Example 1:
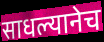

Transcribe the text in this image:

साधल्यानेच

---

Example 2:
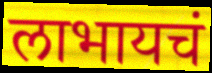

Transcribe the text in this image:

लाभायचं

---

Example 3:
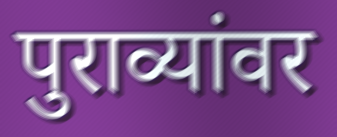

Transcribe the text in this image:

पुराव्यांवर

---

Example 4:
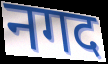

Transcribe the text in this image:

नगद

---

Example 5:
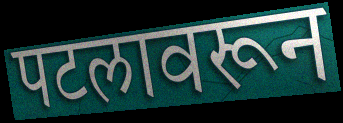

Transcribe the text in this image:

पटलावरून